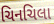
ચિનચિલા